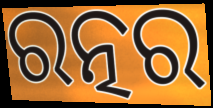
ରତ୍ନର